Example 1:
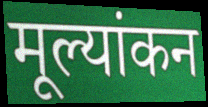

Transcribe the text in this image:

मूल्‍यांकन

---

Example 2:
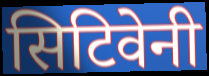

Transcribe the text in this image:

सिटिवेनी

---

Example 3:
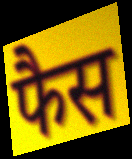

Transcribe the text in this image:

फैस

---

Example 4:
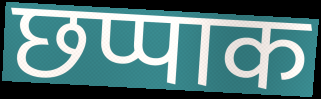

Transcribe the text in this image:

छप्पाक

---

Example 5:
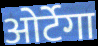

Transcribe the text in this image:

ओर्टेगा